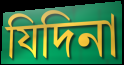
যিদিনা